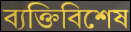
ব্যক্তিবিশেষ